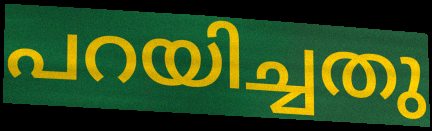
പറയിച്ചതു